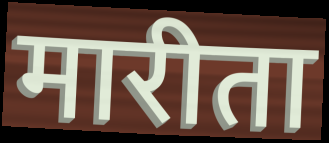
मारीता